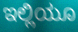
ಇಲ್ಲಿಯೂ